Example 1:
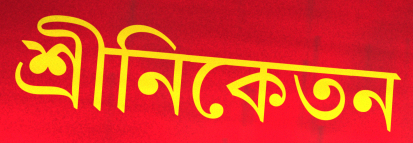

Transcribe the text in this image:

শ্রীনিকেতন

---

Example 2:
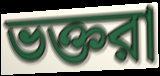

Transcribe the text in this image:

ভক্তরা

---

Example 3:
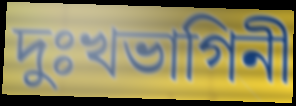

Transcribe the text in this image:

দুঃখভাগিনী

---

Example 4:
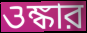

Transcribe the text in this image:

ওঙ্কার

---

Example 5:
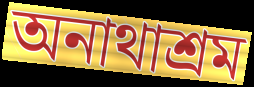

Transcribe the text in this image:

অনাথাশ্রম